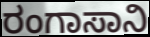
ರಂಗಾಸಾನಿ